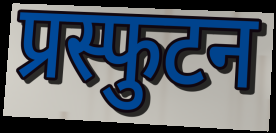
प्रस्फुटन